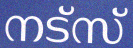
നട്സ്